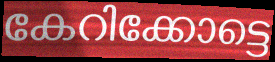
കേറിക്കോട്ടെ